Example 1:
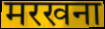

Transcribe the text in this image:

मरखना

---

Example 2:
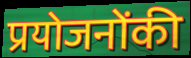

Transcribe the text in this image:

प्रयोजनोंकी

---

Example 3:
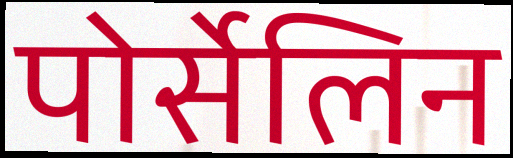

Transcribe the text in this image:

पोर्सेलिन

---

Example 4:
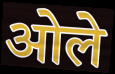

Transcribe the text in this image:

ओले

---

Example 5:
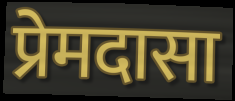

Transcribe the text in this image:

प्रेमदासा